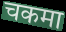
चकमा